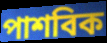
পাশবিক